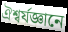
ঐশ্বর্যজ্ঞানে